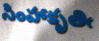
సింహాకృతిఁ